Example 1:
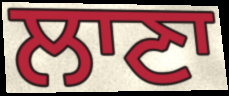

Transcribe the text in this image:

ਲਾਣਾ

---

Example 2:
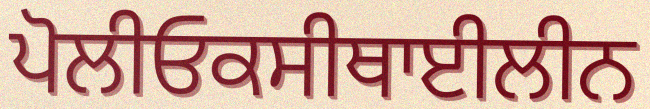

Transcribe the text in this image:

ਪੋਲੀਓਕਸੀਥਾਈਲੀਨ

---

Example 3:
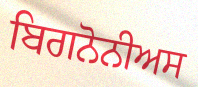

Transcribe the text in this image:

ਬਿਗਨੋਨੀਅਸ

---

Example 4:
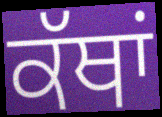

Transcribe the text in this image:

ਕੱਥਾਂ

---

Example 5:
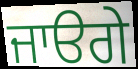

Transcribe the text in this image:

ਜਾੳਗੇ